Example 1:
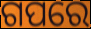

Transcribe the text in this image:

ଗପରେ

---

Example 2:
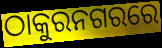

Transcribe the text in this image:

ଠାକୁରନଗରରେ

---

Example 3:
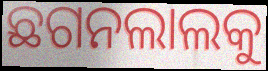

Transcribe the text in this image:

ଛଗନଲାଲକୁ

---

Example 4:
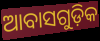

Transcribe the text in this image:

ଆବାସଗୁଡ଼ିକ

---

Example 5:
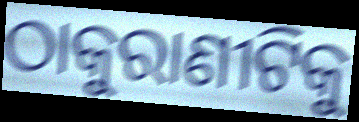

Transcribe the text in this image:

ଠାକୁରାଣୀଟିକୁ